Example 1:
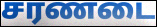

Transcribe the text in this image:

சரணடை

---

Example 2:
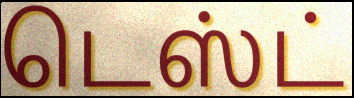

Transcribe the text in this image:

டெஸ்ட்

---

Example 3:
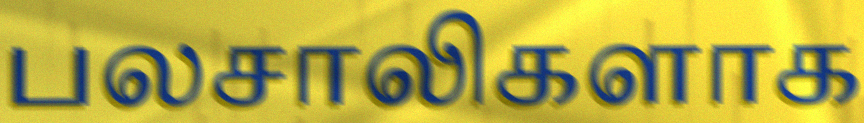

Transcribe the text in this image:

பலசாலிகளாக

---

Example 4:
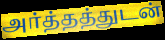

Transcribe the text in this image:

அர்த்தத்துடன்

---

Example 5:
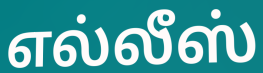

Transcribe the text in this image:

எல்லீஸ்